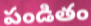
పండితం